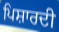
ਪਿਸ਼ਾਰਦੀ